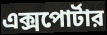
এক্সপোর্টার